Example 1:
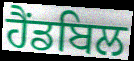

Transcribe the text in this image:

ਹੈਂਡਬਿਲ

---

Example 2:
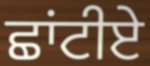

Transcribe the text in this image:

ਛਾਂਟੀਏ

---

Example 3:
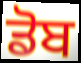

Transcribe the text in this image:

ਡੋਬ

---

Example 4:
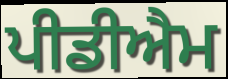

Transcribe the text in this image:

ਪੀਡੀਐਮ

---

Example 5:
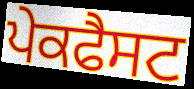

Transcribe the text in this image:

ਪੇਕਫੈਸਟ